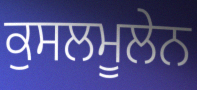
ਕੁਸਲਮੂਲੇਨ